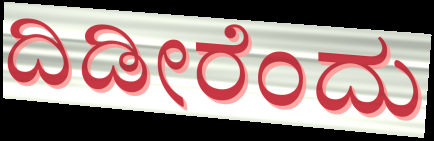
ದಿಡೀರೆಂದು